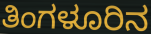
ತಿಂಗಳೂರಿನ